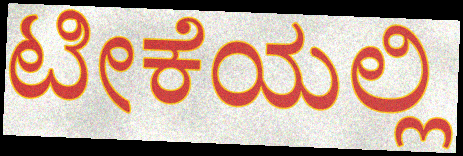
ಟೀಕೆಯಲ್ಲಿ